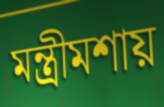
মন্ত্রীমশায়